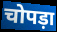
चोपड़ा